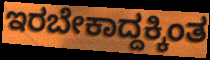
ಇರಬೇಕಾದ್ದಕ್ಕಿಂತ